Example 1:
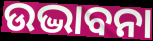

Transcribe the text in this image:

ଉଦ୍ଭାବନା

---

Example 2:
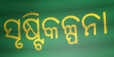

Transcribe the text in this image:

ସୃଷ୍ଟିକଳ୍ପନା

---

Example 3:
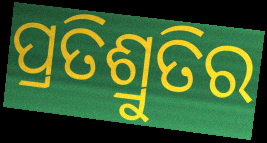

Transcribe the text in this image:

ପ୍ରତିଶ୍ରୁତିର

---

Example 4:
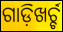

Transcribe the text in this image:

ଗାଡ଼ିଖର୍ଚ୍ଚ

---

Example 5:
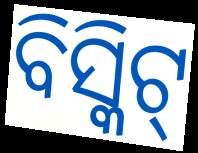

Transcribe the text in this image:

ବିସ୍କିଟ୍